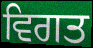
ਵਿਗਤ